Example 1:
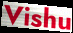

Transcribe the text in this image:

Vishu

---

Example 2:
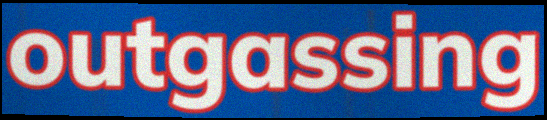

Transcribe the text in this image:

outgassing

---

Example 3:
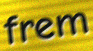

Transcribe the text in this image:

frem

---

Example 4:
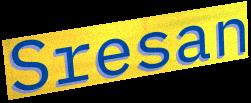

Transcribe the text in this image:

Sresan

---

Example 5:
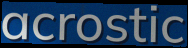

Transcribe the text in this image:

acrostic